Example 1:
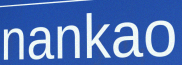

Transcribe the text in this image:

nankao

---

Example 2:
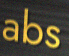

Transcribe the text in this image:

abs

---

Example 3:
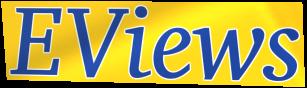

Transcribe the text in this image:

EViews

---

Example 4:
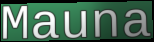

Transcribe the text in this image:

Mauna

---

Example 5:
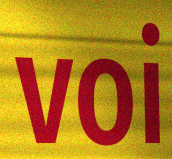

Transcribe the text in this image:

voi